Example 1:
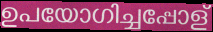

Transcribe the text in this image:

ഉപയോഗിച്ചപ്പോള്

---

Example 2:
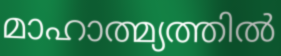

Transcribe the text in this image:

മാഹാത്മ്യത്തിൽ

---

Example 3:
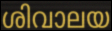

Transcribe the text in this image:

ശിവാലയ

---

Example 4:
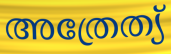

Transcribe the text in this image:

അത്രേത്യ്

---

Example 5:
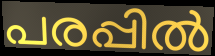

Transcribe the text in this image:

പരപ്പിൽ